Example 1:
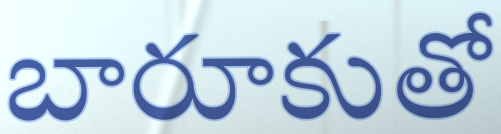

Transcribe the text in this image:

బారూకుతో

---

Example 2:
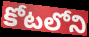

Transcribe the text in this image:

కోటలోని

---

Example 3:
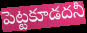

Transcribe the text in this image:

పెట్టకూడదనీ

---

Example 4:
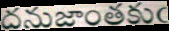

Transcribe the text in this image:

దనుజాంతకుఁ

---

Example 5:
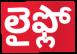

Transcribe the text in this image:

లైఫ్లో